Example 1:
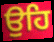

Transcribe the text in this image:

ਉਹਿ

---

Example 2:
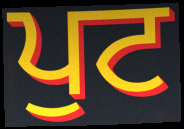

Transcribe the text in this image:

ਪੁਟ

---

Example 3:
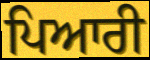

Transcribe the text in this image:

ਪਿਆਰੀ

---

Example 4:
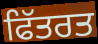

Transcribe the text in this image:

ਫਿੱਤਰਤ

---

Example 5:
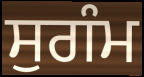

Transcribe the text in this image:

ਸੁਗੰਮ